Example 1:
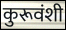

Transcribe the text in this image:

कुरूवंशी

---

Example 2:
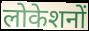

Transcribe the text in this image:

लोकेशनों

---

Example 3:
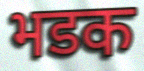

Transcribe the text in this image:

भडक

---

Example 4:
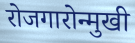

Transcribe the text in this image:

रोजगारोन्मुखी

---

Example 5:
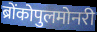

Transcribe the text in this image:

ब्रोंकोपुलमोनरी